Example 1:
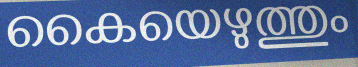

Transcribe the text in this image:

കൈയെഴുത്തും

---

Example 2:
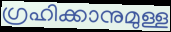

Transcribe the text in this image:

ഗ്രഹിക്കാനുമുള്ള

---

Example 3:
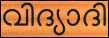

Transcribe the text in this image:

വിദ്യാദി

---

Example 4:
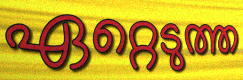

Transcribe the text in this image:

ഏറ്റെടുത്ത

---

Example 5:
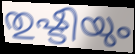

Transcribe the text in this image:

തുഷ്ടിയും